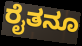
ರೈತನೂ